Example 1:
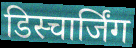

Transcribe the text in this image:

डिस्चार्जिंग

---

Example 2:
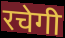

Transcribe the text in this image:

रचेगी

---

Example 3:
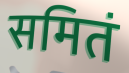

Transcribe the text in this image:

समितं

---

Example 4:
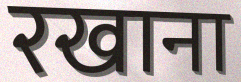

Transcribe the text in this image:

रखाना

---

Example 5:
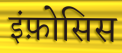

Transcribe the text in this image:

इंफ़ोसिस